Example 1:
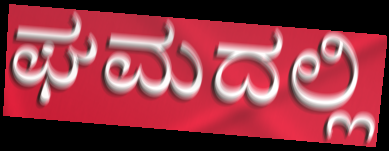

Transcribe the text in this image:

ಘಮದಲ್ಲಿ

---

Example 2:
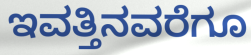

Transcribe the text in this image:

ಇವತ್ತಿನವರೆಗೂ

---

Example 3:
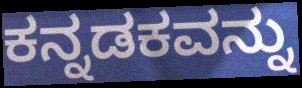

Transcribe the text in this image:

ಕನ್ನಡಕವನ್ನು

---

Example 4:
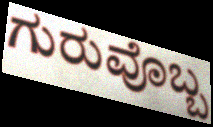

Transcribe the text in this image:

ಗುರುವೊಬ್ಬ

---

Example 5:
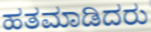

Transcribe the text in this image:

ಹತಮಾಡಿದರು